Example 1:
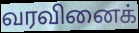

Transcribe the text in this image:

வரவினைக்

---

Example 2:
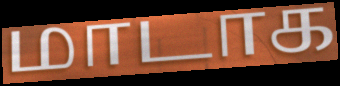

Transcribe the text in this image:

மாடாக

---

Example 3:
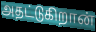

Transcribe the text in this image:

அதட்டுகிறான்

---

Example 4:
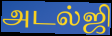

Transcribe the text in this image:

அடல்ஜி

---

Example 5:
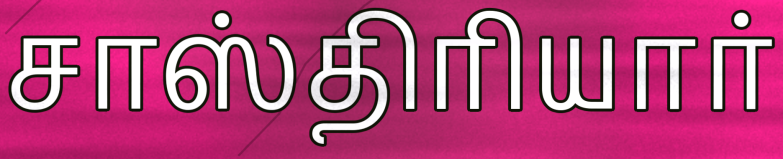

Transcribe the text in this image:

சாஸ்திரியார்